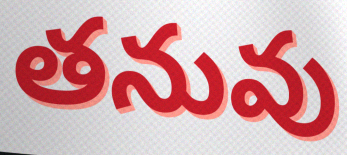
తనువు